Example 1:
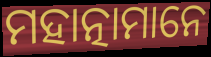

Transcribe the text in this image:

ମହାତ୍ନାମାନେ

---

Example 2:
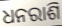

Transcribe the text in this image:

ଧନରାଶି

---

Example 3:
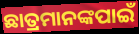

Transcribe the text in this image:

ଛାତ୍ରମାନଙ୍କପାଇଁ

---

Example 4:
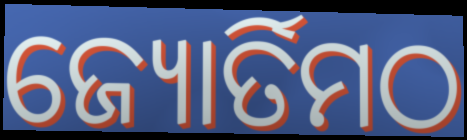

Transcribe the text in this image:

ଜ୍ୟୋର୍ତିମଠ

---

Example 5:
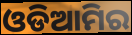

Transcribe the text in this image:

ଓଡିଆମିର